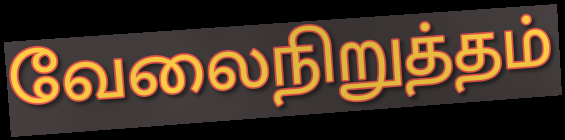
வேலைநிறுத்தம்